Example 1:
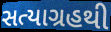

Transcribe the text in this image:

સત્યાગ્રહથી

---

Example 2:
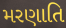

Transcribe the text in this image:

મરણાતિ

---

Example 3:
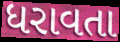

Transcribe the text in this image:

ધરાવતા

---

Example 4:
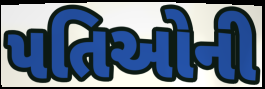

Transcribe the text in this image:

પતિઓની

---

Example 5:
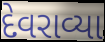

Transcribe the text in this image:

દેવરાવ્યા